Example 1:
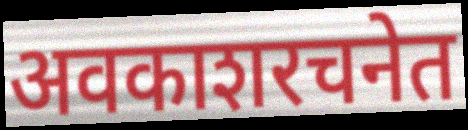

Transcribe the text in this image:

अवकाशरचनेत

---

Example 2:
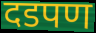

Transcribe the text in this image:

दडपण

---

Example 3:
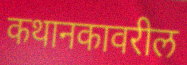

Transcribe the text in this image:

कथानकावरील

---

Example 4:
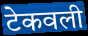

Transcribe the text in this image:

टेकवली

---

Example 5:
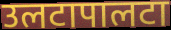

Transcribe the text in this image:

उलटापालटा